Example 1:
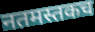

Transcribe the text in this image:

नतमस्तकच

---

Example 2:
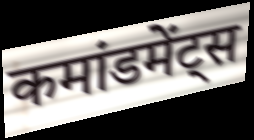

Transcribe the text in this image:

कमांडमेंट्स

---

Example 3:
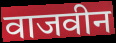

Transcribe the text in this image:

वाजवीन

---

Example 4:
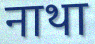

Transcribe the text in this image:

नाथा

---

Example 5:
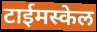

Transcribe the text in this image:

टाईमस्केल